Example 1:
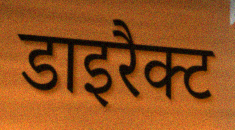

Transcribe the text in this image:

डाइरैक्ट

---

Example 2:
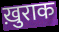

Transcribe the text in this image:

ख़ुराक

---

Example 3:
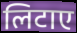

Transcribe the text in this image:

लिटाए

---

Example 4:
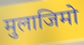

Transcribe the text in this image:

मुलाजिमो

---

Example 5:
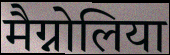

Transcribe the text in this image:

मैग्नोलिया